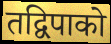
तद्विपाको